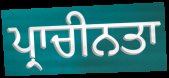
ਪ੍ਰਾਚੀਨਤਾ